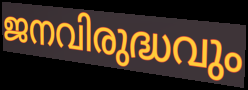
ജനവിരുദ്ധവും